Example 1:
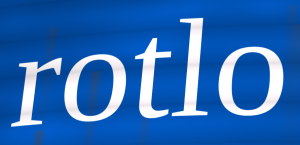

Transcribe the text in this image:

rotlo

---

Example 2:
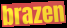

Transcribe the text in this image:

brazen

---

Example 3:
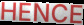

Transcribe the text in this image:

HENCE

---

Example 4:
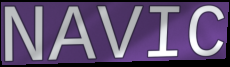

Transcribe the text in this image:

NAVIC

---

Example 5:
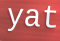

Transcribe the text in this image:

yat